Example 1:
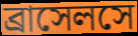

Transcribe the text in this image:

ব্রাসেলসে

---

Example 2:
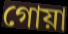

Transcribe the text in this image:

গোয়া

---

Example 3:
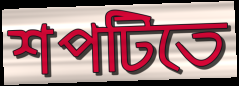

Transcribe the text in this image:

শপটিতে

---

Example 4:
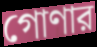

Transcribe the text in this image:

গোণার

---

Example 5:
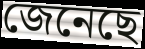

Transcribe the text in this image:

জেনেছে